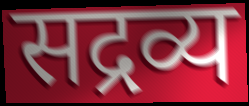
सद्रव्य